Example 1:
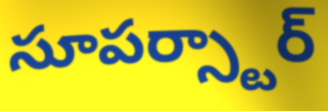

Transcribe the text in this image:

సూపర్స్టార్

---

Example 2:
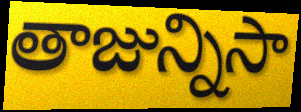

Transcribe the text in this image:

తాజున్నిసా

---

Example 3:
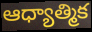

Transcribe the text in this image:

ఆధ్యాత్మిక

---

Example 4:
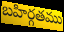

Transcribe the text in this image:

బహిర్గతము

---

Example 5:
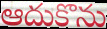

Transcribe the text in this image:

ఆదుకొను